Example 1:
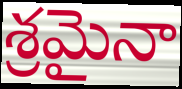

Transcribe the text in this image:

శ్రమైనా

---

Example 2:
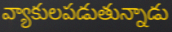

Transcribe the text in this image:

వ్యాకులపడుతున్నాడు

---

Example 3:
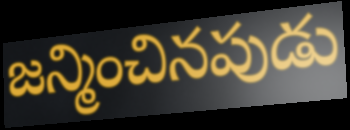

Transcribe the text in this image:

జన్మించినపుడు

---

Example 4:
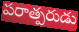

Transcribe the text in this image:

పరాత్పరుడు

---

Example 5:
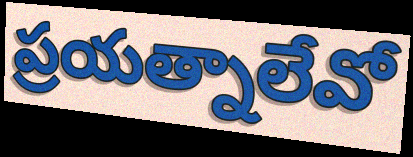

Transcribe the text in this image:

ప్రయత్నాలేవో